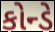
કોન્ડે